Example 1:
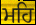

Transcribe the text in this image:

ਮਹਿ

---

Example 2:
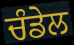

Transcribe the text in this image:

ਚੰਡੇਲ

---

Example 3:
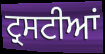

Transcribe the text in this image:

ਟ੍ਰਸਟੀਆਂ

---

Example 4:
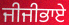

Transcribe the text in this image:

ਜੀਜੀਭਾਏ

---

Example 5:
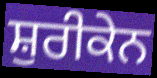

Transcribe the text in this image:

ਸ਼ੁਰੀਕੇਨ